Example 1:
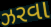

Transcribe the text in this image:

ઝરવા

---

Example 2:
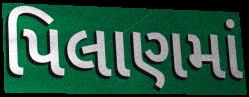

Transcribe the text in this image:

પિલાણમાં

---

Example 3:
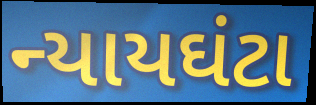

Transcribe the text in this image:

ન્યાયઘંટા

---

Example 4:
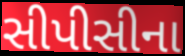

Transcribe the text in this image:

સીપીસીના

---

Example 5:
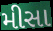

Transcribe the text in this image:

મીસા